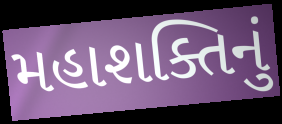
મહાશક્તિનું